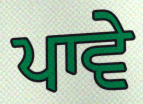
ਪਾਵੇ